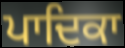
ਪਾਦਿਕਾ